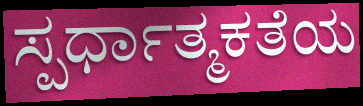
ಸ್ಪರ್ಧಾತ್ಮಕತೆಯ